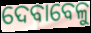
ଦେବାବେଳୁ